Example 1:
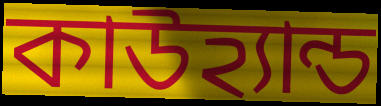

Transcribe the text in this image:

কাউহ্যান্ড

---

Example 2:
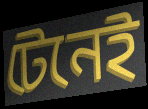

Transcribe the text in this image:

টেনেই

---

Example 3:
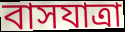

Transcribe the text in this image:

বাসযাত্রা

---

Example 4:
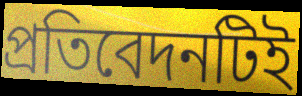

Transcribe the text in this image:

প্রতিবেদনটিই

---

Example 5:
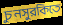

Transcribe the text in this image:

চুনসুরকিতে